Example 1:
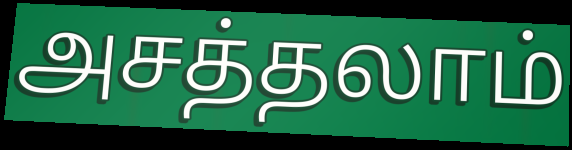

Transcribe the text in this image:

அசத்தலாம்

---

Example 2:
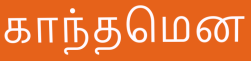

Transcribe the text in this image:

காந்தமென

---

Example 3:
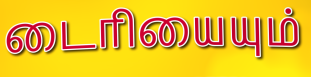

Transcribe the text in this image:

டைரியையும்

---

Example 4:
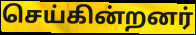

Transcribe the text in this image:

செய்கின்றனர்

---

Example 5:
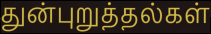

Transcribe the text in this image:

துன்புறுத்தல்கள்